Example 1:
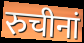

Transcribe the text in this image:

रुचीनां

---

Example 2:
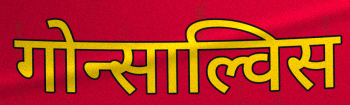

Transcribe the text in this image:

गोन्साल्विस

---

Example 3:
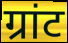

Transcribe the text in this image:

ग्रांट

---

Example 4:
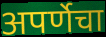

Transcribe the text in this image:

अपर्णेचा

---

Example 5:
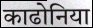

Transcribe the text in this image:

काढोनिया